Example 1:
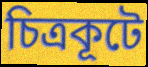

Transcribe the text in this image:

চিত্রকূটে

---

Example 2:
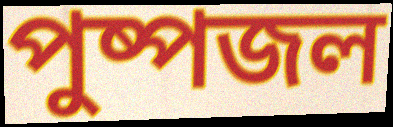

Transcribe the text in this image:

পুষ্পজল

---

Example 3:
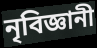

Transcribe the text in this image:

নৃবিজ্ঞানী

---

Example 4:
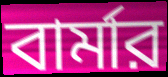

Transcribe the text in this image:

বার্মার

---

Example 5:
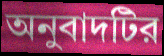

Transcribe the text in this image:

অনুবাদটির